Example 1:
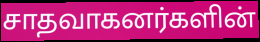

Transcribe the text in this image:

சாதவாகனர்களின்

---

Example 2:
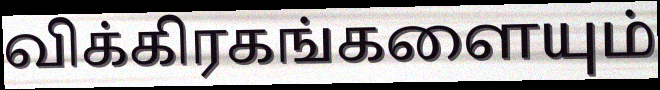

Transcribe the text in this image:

விக்கிரகங்களையும்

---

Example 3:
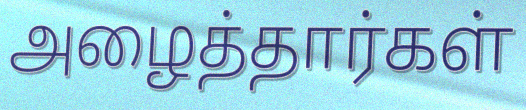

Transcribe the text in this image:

அழைத்தார்கள்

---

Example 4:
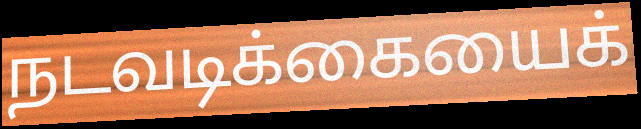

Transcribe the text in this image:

நடவடிக்கையைக்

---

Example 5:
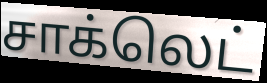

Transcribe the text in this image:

சாக்லெட்